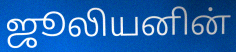
ஜூலியனின்